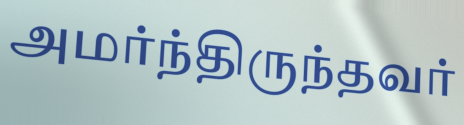
அமர்ந்திருந்தவர்